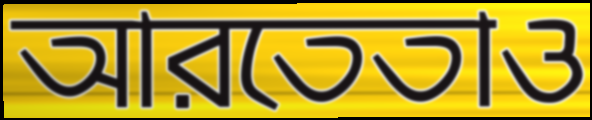
আরতেতাও